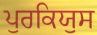
ਪੁਰਕਿਯੁਸ